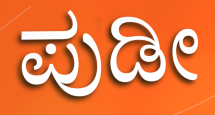
ಪುಡೀ